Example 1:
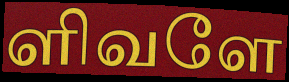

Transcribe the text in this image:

ளிவளே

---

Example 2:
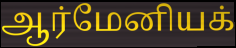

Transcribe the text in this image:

ஆர்மேனியக்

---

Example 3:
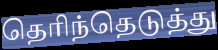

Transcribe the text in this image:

தெரிந்தெடுத்து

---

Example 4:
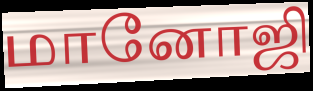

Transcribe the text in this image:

மானோஜி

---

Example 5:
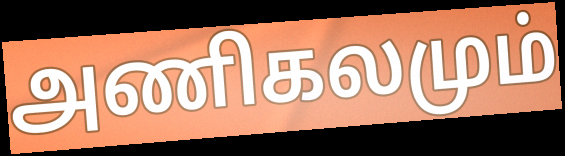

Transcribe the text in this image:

அணிகலமும்